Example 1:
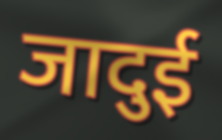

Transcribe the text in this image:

जादुई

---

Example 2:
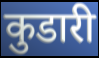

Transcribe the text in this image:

कुडारी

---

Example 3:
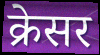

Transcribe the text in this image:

क्रेसर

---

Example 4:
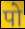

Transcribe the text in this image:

पो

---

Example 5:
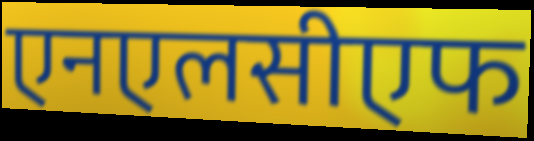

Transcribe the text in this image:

एनएलसीएफ